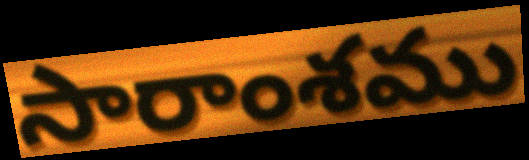
సారాంశము